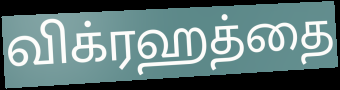
விக்ரஹத்தை